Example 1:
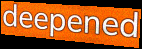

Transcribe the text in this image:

deepened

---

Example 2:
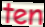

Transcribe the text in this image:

ten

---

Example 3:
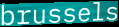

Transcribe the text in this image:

brussels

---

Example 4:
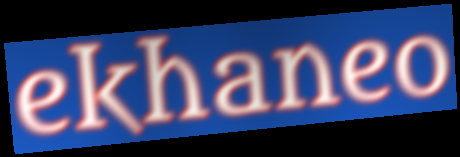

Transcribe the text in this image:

ekhaneo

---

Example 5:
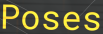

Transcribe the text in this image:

Poses